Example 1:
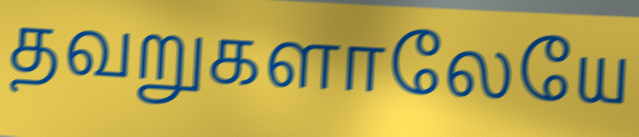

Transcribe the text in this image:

தவறுகளாலேயே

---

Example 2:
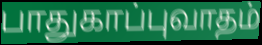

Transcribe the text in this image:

பாதுகாப்புவாதம்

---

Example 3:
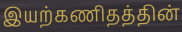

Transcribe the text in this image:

இயற்கணிதத்தின்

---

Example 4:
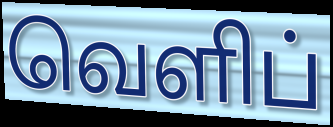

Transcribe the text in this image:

வெளிப்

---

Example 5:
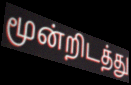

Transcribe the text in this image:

மூன்றிடத்து